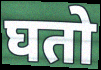
घतो